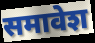
समावेश